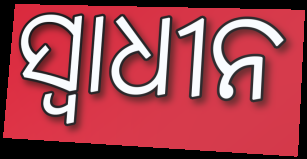
ସ୍ୱାଧୀନ